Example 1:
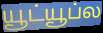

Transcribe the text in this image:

யூட்யூப்ல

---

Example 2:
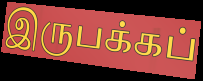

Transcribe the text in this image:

இருபக்கப்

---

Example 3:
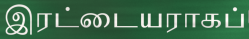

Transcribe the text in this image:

இரட்டையராகப்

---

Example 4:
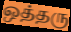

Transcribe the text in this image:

ஒத்தரு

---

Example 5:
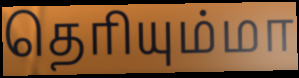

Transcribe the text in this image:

தெரியும்மா